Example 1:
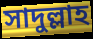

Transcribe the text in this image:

সাদুল্লাহ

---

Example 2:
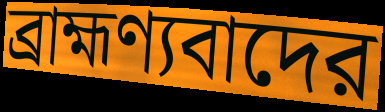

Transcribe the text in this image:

ব্রাহ্মণ্যবাদের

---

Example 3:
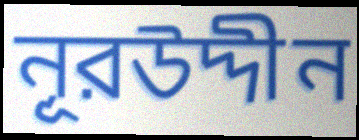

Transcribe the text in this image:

নূরউদ্দীন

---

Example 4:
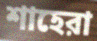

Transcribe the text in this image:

শাহেরা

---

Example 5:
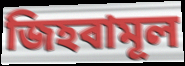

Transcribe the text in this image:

জিহবামূল